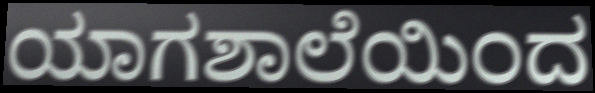
ಯಾಗಶಾಲೆಯಿಂದ